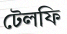
টেলফি